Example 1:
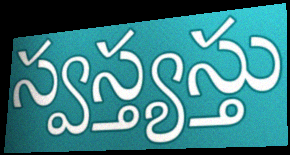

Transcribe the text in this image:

స్వస్త్యస్తు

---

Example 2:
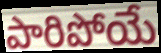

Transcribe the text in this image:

పారిపోయే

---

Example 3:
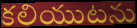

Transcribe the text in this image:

కలియుటను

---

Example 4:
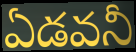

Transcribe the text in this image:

ఏడవనీ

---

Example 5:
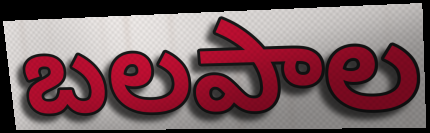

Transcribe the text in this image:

బలపాల